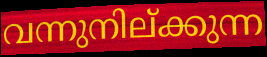
വന്നുനില്ക്കുന്ന